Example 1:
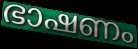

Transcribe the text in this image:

ഭാഷണം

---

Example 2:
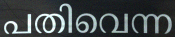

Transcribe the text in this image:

പതിവെന്ന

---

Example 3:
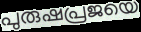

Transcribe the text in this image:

പുരുഷപ്രജയെ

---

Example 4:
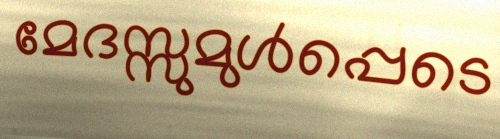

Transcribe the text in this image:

മേദസ്സുമുൾപ്പെടെ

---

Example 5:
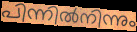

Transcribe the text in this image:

പിന്നിൽനിന്നും